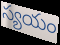
స్యయం